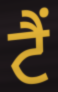
ਟੈੰ